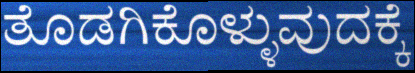
ತೊಡಗಿಕೊಳ್ಳುವುದಕ್ಕೆ